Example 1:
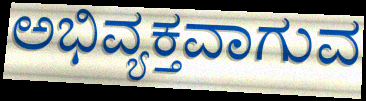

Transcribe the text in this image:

ಅಭಿವ್ಯಕ್ತವಾಗುವ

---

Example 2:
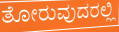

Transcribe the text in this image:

ತೋರುವುದರಲ್ಲಿ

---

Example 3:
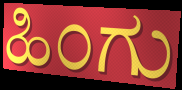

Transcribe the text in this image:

ಹಿಂಗು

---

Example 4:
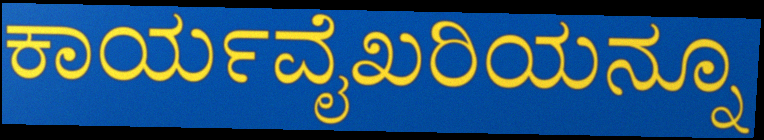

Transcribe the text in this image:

ಕಾರ್ಯವೈಖರಿಯನ್ನೂ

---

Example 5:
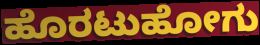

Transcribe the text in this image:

ಹೊರಟುಹೋಗು